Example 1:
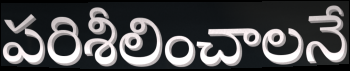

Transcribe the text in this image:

పరిశీలించాలనే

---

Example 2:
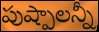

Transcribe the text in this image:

పుష్పాలన్నీ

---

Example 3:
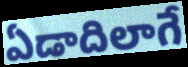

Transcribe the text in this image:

ఏడాదిలాగే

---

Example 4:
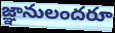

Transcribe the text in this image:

జ్ఞానులందరూ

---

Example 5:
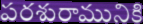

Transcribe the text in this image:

పరశురామునికి